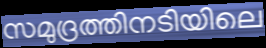
സമുദ്രത്തിനടിയിലെ